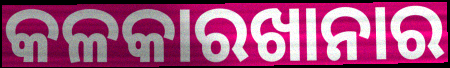
କଳକାରଖାନାର